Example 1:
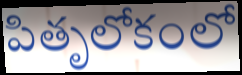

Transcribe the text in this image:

పితృలోకంలో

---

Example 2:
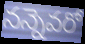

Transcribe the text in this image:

నన్నెవరో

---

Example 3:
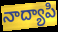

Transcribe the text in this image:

నాద్యాపి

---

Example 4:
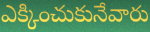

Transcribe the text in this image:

ఎక్కించుకునేవారు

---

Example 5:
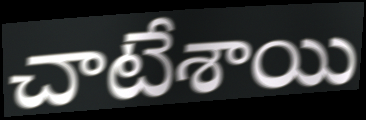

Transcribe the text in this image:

చాటేశాయి